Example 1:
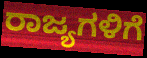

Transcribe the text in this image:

ರಾಜ್ಯಗಳಿಗೆ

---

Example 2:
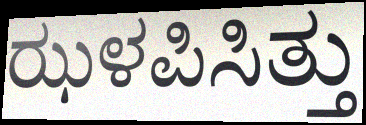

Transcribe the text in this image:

ಝಳಪಿಸಿತ್ತು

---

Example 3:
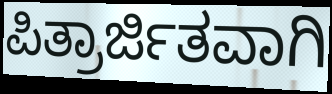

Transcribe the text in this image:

ಪಿತ್ರಾರ್ಜಿತವಾಗಿ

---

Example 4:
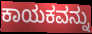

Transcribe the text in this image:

ಕಾಯಕವನ್ನು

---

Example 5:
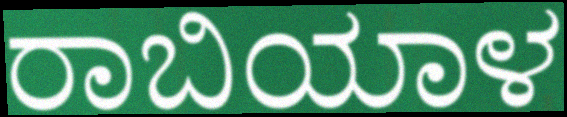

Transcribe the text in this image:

ರಾಬಿಯಾಳ